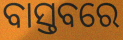
ବାସ୍ତବରେ